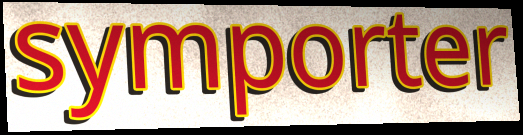
symporter